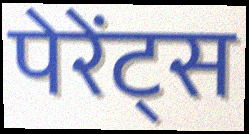
पेरेंट्स